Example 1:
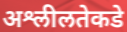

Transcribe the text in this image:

अश्लीलतेकडे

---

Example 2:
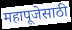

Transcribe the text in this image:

महापूजेसाठी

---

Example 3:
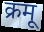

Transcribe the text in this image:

क्रमू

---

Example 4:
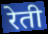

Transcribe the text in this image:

रेती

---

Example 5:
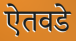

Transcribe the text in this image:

ऐतवडे